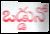
ఒడ్డునో